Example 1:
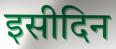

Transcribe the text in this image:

इसीदिन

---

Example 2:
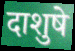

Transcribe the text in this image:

दाशुषे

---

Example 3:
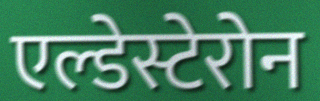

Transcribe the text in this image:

एल्डेस्टेरोन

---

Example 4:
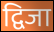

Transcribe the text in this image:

द्विजा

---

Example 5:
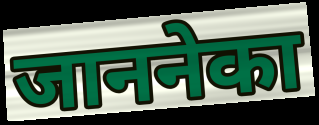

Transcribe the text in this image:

जाननेका